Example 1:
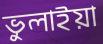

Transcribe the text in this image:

ভুলাইয়া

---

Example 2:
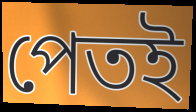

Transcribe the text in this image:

পেতই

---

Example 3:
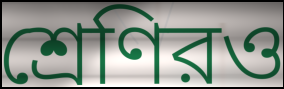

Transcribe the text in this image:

শ্রেণিরও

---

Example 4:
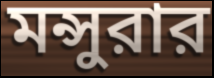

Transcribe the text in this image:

মন্সুরার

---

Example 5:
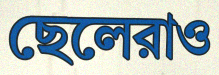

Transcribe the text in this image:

ছেলেরাও